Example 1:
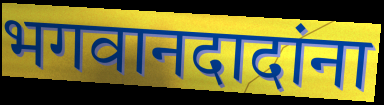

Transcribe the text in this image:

भगवानदादांना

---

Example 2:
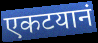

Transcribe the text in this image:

एकटयानं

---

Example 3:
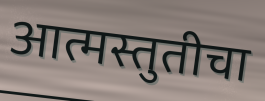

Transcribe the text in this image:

आत्मस्तुतीचा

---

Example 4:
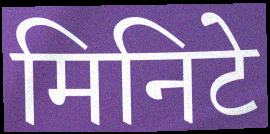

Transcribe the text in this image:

मिनिटे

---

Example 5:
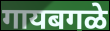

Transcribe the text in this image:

गायबगळे